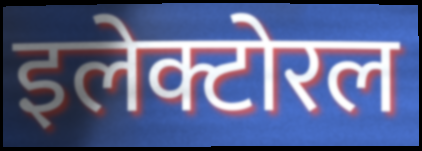
इलेक्टोरल